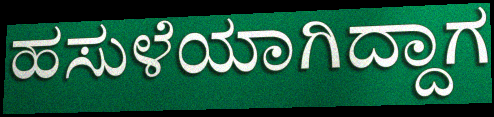
ಹಸುಳೆಯಾಗಿದ್ದಾಗ